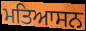
ਮਤਿਆਸਨ